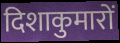
दिशाकुमारों